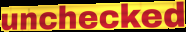
unchecked